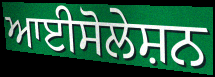
ਆਈਸੋਲੇਸ਼ਨ